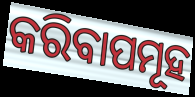
କରିବାପମୂହ